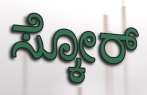
ಸ್ಕೋರ್